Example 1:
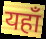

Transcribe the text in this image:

यहाँ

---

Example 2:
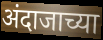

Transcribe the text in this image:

अंदाजाच्या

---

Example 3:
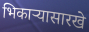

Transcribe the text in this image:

भिकार्‍यासारखे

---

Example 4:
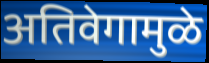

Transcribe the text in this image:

अतिवेगामुळे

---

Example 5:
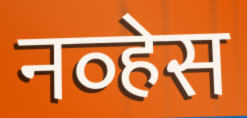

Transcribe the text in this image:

नव्हेस